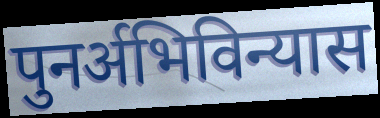
पुनर्अभिविन्यास